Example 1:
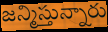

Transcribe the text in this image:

జన్మిస్తున్నారు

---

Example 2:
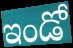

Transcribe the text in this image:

ఇండో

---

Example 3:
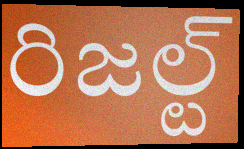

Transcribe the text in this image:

రిజల్ట్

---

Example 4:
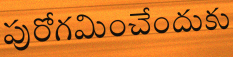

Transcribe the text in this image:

పురోగమించేందుకు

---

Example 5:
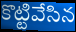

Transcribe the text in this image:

కొట్టివేసిన